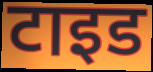
टाइड